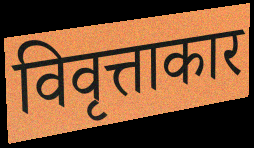
विवृत्ताकार